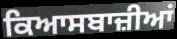
ਕਿਆਸਬਾਜ਼ੀਆਂ